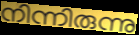
നിന്നിരുന്നു